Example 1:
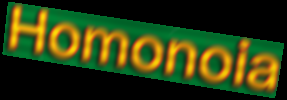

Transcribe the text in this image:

Homonoia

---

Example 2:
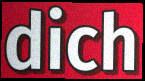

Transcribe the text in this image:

dich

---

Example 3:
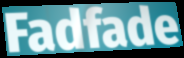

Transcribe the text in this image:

Fadfade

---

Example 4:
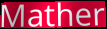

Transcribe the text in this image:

Mather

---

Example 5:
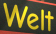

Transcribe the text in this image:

Welt